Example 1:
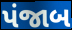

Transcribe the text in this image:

પંજાબ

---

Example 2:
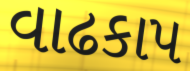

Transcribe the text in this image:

વાઢકાપ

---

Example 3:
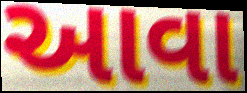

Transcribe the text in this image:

આવા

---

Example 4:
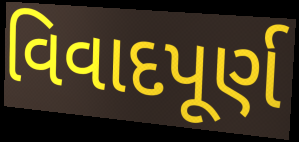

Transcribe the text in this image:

વિવાદપૂર્ણ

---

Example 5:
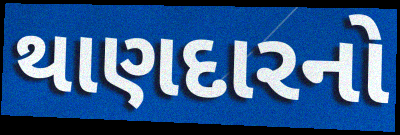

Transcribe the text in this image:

થાણદારનો